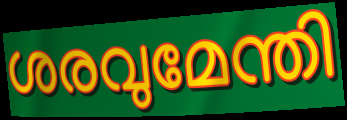
ശരവുമേന്തി